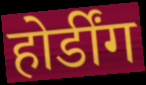
होर्डींग